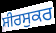
ਸੀਰਸੁਕਰ